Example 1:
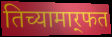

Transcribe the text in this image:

तिच्यामार्फत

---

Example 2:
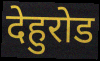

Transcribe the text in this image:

देहुरोड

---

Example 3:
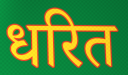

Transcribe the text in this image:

धरित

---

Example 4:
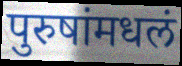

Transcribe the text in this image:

पुरुषांमधलं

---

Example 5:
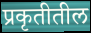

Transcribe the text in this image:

प्रकृतीतील